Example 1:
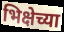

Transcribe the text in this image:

भिक्षेच्या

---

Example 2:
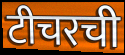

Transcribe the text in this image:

टीचरची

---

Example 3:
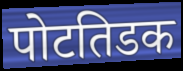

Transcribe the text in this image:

पोटतिडक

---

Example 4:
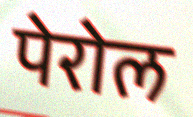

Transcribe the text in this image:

पेरोल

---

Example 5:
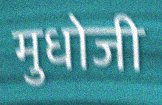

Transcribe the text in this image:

मुधोजी